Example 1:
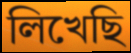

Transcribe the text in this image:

লিখেছি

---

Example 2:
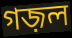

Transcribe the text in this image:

গজ়ল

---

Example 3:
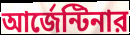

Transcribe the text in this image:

আর্জেন্টিনার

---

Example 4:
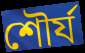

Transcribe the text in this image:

শৌর্য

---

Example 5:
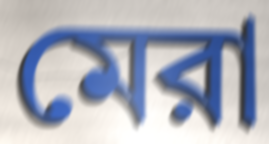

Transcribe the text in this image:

মেরা